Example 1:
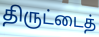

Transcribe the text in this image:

திருட்டைத்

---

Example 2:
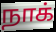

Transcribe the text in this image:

நாக்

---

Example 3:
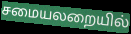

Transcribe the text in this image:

சமையலறையில்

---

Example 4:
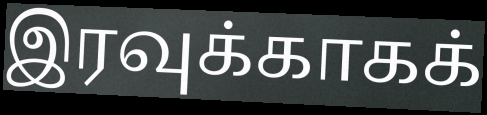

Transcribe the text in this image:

இரவுக்காகக்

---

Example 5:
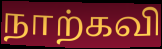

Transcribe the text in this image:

நாற்கவி